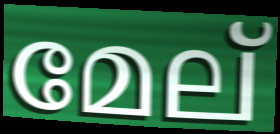
മേല്